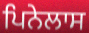
ਪਿਨੇਲਾਸ